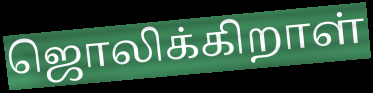
ஜொலிக்கிறாள்